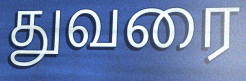
துவரை